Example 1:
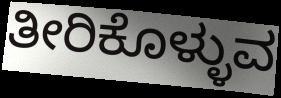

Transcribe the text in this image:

ತೀರಿಕೊಳ್ಳುವ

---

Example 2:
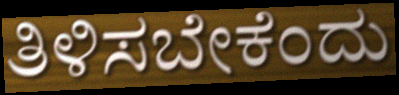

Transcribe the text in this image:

ತಿಳಿಸಬೇಕೆಂದು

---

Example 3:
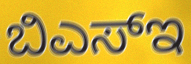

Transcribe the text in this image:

ಬಿಎಸ್ಇ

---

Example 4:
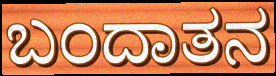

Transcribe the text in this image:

ಬಂದಾತನ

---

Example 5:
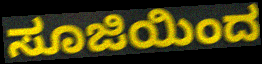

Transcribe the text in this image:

ಸೂಜಿಯಿಂದ